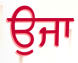
ਉਜਾ